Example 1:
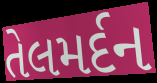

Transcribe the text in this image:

તેલમર્દન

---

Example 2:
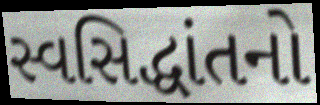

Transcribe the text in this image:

સ્વસિદ્ધાંતનો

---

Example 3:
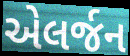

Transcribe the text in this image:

એલર્જન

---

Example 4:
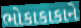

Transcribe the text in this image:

ભોકાકાકાને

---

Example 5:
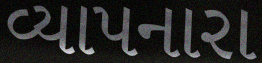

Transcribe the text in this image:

વ્યાપનારા